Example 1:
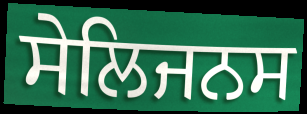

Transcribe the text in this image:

ਸੇਲਿਜਨਸ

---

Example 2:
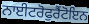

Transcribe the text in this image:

ਨਾਈਟਰੋਫੁਰੈਂਟੋਇਨ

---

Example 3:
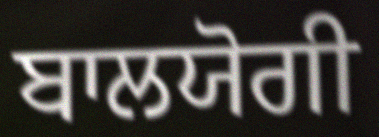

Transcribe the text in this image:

ਬਾਲਯੋਗੀ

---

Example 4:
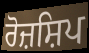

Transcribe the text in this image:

ਰੋਜ਼ਸ਼ਿਪ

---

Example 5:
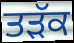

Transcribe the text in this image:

ਤੜੱਕ